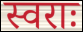
स्वराः